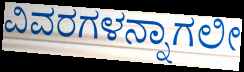
ವಿವರಗಳನ್ನಾಗಲೀ